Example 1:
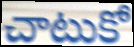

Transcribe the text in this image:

చాటుకో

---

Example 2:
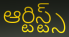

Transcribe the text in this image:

ఆర్టిస్ట్స్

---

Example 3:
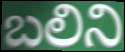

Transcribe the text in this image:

బలిని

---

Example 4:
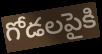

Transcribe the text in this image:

గోడలపైకి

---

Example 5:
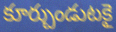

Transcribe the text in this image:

కూర్చుండుటకై